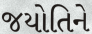
જયોતિને